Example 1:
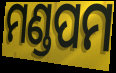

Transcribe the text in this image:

ମଣ୍ଡପମ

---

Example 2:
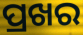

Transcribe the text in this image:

ପ୍ରଖର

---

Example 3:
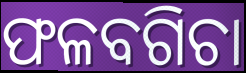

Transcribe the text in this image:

ଫଳବଗିଚା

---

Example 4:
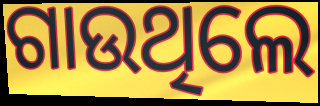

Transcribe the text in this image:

ଗାଉଥିଲେ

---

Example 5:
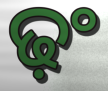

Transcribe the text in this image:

ଢ଼ଂ